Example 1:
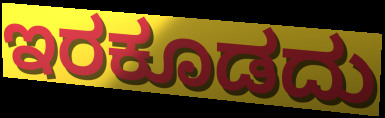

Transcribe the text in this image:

ಇರಕೂಡದು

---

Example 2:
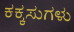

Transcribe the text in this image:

ಕಕ್ಕಸುಗಳು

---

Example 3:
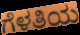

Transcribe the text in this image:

ಗೆಳತಿಯ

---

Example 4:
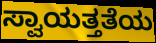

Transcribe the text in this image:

ಸ್ವಾಯತ್ತತೆಯ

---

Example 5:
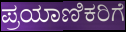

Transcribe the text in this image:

ಪ್ರಯಾಣಿಕರಿಗೆ